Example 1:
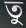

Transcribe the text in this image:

তু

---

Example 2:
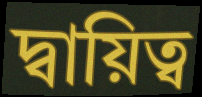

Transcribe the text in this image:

দ্বায়িত্ব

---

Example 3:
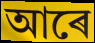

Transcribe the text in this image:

আৰে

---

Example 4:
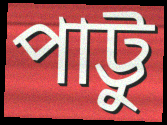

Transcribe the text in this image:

পাট্টু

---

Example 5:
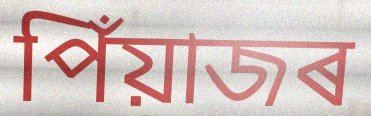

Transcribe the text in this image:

পিঁয়াজৰ